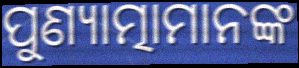
ପୁଣ୍ୟାତ୍ମାମାନଙ୍କ